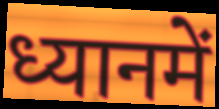
ध्यानमें